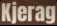
Kjerag